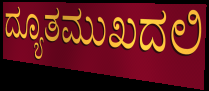
ದ್ಯೂತಮುಖದಲಿ